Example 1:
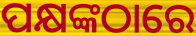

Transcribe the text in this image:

ପକ୍ଷଙ୍କଠାରେ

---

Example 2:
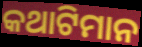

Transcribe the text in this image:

କଥାଟିମାନ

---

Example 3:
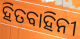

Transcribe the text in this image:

ହିତବାହିନୀ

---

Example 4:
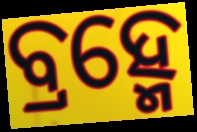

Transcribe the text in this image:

ବ୍ରହ୍ମେ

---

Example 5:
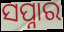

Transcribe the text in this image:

ସପ୍ନାର